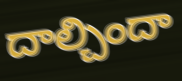
దాల్చిందా